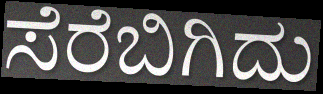
ಸೆರೆಬಿಗಿದು